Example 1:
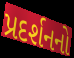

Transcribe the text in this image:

પ્રદર્શનનો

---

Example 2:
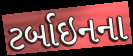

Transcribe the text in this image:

ટર્બાઇનના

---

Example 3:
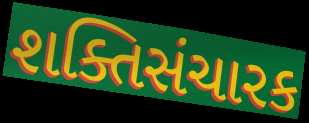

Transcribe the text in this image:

શક્તિસંચારક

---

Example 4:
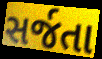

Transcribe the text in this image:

સર્જતા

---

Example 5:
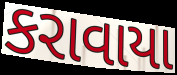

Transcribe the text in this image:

કરાવાયા